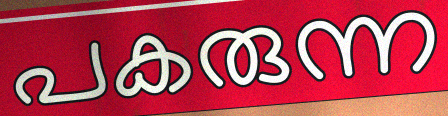
പകരുന്ന